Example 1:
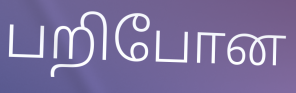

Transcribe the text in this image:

பறிபோன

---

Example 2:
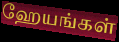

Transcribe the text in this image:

ஹேயங்கள்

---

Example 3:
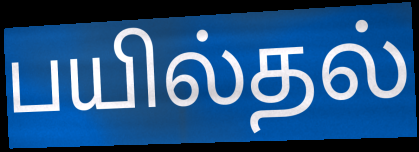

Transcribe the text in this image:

பயில்தல்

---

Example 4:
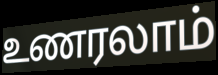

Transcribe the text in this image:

உணரலாம்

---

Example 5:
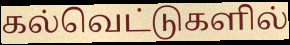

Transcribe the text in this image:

கல்வெட்டுகளில்